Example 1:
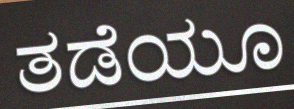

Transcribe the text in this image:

ತಡೆಯೂ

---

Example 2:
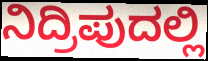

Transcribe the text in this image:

ನಿದ್ರಿಪುದಲ್ಲಿ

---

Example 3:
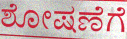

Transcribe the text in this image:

ಶೋಷಣೆಗೆ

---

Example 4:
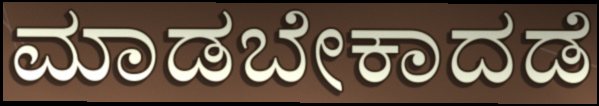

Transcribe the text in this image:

ಮಾಡಬೇಕಾದಡೆ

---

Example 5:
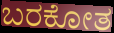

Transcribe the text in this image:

ಬರಕೋತ